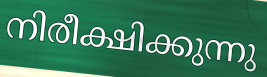
നിരീക്ഷിക്കുന്നു